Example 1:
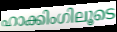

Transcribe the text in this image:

ഹാക്കിംഗിലൂടെ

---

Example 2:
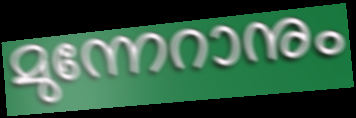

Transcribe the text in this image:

മുന്നേറാനും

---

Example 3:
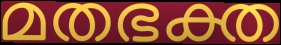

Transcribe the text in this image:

മതഭക്ത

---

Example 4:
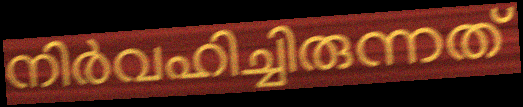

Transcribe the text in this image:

നിർവഹിച്ചിരുന്നത്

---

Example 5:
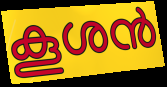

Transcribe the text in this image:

കൂശൻ